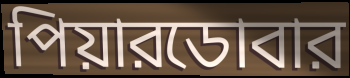
পিয়ারডোবার